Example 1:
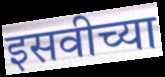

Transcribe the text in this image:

इसवीच्या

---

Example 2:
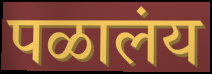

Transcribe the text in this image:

पळालंय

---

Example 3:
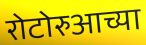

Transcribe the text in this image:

रोटोरुआच्या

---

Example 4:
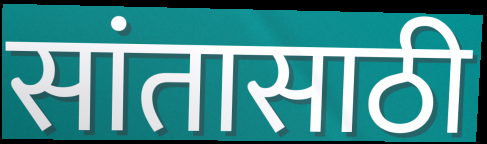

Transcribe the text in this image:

सांतासाठी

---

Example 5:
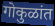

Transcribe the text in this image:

गोकुळांत